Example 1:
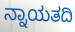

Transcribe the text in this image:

ನ್ನಾಯತದಿ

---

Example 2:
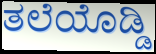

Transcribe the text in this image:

ತಲೆಯೊಡ್ಡಿ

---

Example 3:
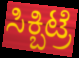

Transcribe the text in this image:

ಸಿಕ್ಬಿಟ್ರೆ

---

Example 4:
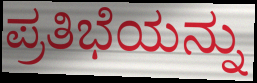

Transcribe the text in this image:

ಪ್ರತಿಭೆಯನ್ನು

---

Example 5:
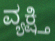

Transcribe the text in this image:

ವ್ಯಕ್ಷ್ತಿ